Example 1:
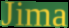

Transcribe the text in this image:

Jima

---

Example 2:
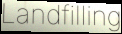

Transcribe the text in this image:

Landfilling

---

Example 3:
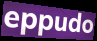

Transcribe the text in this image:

eppudo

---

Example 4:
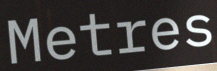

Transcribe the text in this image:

Metres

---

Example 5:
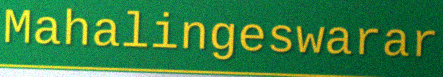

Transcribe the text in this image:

Mahalingeswarar